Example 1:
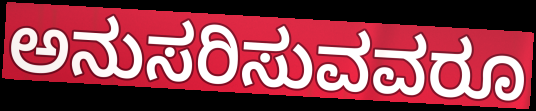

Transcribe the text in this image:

ಅನುಸರಿಸುವವರೂ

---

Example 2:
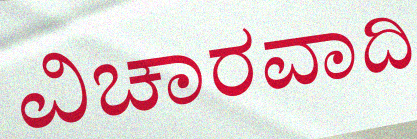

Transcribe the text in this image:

ವಿಚಾರವಾದಿ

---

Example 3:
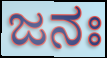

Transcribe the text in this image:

ಜನಃ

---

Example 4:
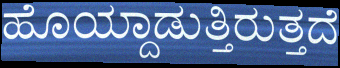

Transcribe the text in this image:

ಹೊಯ್ದಾಡುತ್ತಿರುತ್ತದೆ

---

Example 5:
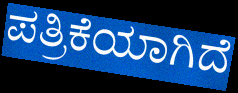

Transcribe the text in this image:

ಪತ್ರಿಕೆಯಾಗಿದೆ